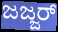
ಜಜ್ಜರ್